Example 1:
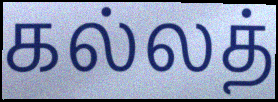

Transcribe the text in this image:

கல்லத்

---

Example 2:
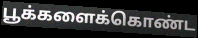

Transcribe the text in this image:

பூக்களைக்கொண்ட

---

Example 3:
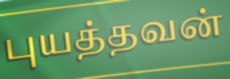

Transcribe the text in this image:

புயத்தவன்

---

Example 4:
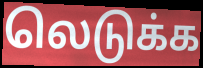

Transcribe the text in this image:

லெடுக்க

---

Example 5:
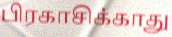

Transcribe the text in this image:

பிரகாசிக்காது